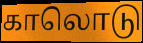
காலொடு